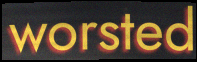
worsted